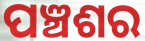
ପଞ୍ଚଶର